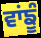
ਵਾਂਙੂੰ